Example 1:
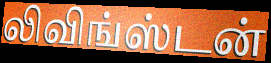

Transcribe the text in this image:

லிவிங்ஸ்டன்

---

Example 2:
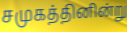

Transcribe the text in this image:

சமுகத்தினின்று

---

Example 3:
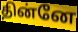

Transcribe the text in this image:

தின்னே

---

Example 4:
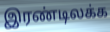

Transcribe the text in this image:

இரண்டிலக்க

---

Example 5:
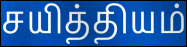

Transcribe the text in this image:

சயித்தியம்